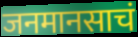
जनमानसाचं